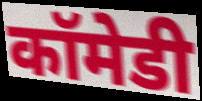
कॉमेडी